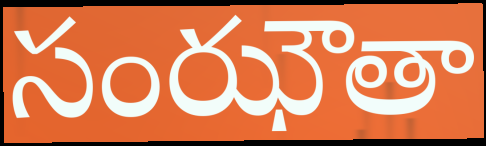
సంఝౌతా